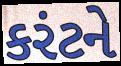
કરંટને